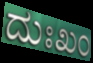
ದುಃಖಂ